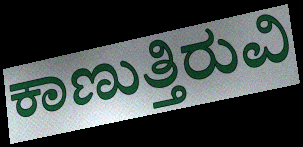
ಕಾಣುತ್ತಿರುವಿ